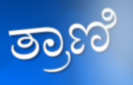
ತ್ರಾಣಿ